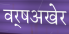
वर्षअखेर